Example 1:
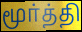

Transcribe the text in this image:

மூர்த்தி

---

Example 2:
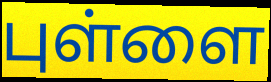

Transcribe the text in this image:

புள்ளை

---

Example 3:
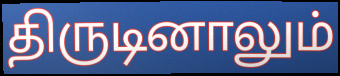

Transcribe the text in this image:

திருடினாலும்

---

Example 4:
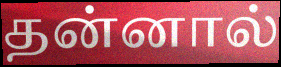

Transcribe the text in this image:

தன்னால்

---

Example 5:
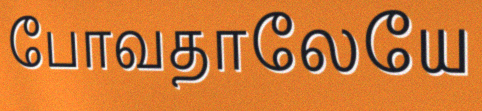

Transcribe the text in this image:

போவதாலேயே